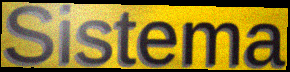
Sistema